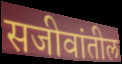
सजीवांतील